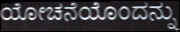
ಯೋಚನೆಯೊಂದನ್ನು